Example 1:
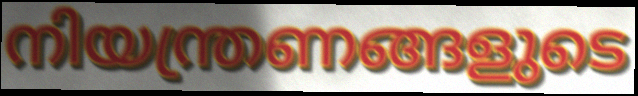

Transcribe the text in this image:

നിയന്ത്രണങ്ങളുടെ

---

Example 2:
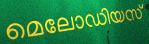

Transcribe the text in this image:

മെലോഡിയസ്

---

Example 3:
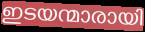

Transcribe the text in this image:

ഇടയന്മാരായി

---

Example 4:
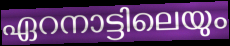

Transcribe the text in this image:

ഏറനാട്ടിലെയും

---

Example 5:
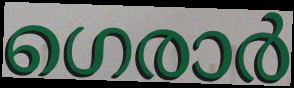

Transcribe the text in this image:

ഗെരാർ